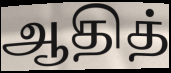
ஆதித்